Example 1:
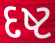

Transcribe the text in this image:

દષ્ટ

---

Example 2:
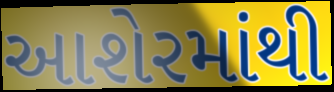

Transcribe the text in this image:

આશેરમાંથી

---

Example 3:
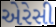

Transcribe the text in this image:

એરેસી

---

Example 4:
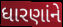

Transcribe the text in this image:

ધારણાંને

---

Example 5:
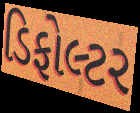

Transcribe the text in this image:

ડિફોલ્ટર